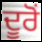
ਦੂਰੋਂ